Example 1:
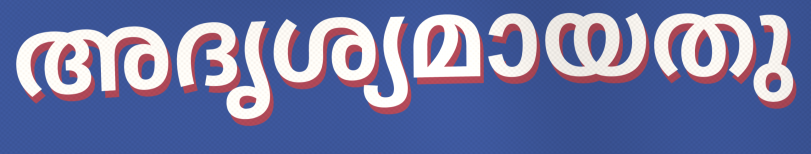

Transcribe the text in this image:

അദൃശ്യമായതു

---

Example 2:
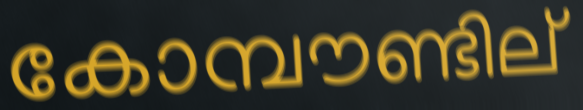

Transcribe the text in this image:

കോമ്പൗണ്ടില്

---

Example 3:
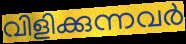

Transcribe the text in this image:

വിളിക്കുന്നവർ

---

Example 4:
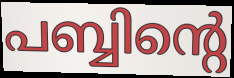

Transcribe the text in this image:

പബ്ബിന്റെ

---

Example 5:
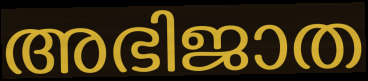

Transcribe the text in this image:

അഭിജാത